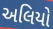
અલિયો